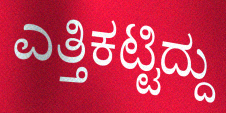
ಎತ್ತಿಕಟ್ಟಿದ್ದು